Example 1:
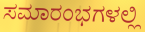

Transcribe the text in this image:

ಸಮಾರಂಭಗಳಲ್ಲಿ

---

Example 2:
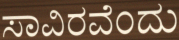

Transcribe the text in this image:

ಸಾವಿರವೆಂದು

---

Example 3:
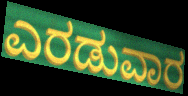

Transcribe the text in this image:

ಎರಡುವಾರ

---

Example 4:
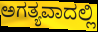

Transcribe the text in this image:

ಅಗತ್ಯವಾದಲ್ಲಿ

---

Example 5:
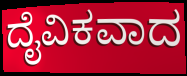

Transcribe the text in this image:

ದೈವಿಕವಾದ